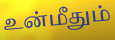
உன்மீதும்